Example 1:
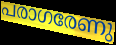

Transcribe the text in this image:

പരാഗരേണു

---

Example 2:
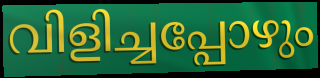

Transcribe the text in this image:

വിളിച്ചപ്പോഴും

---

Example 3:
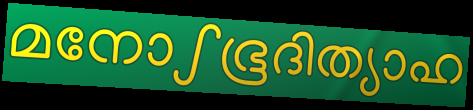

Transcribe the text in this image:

മനോഽഭൂദിത്യാഹ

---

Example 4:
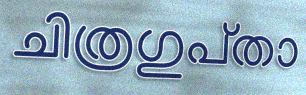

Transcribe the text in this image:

ചിത്രഗുപ്‌താ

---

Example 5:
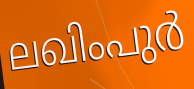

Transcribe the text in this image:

ലഖിംപുർ